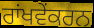
ਰਾਂਖਵੇਂਕਰਨ